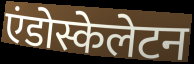
एंडोस्केलेटन